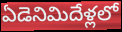
ఏడెనిమిదేళ్లలో